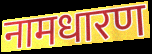
नामधारण